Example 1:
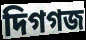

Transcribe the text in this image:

দিগগজ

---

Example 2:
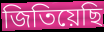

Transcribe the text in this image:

জিতিয়েছি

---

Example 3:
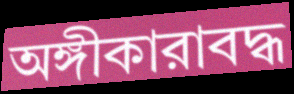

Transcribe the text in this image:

অঙ্গীকারাবদ্ধ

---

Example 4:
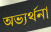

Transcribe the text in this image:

অভ্যর্থনা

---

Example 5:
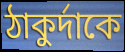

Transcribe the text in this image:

ঠাকুর্দাকে